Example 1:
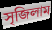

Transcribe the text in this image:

সৃজিলাম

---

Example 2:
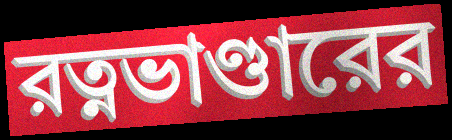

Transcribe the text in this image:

রত্নভাণ্ডারের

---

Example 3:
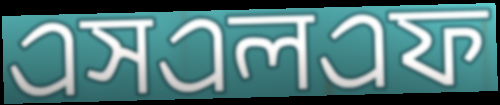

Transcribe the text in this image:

এসএলএফ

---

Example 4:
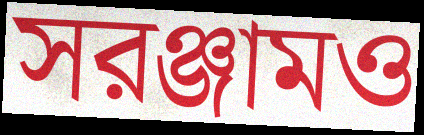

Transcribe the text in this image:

সরঞ্জামও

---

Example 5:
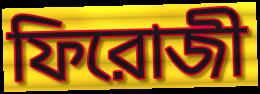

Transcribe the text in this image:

ফিরোজী